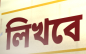
লিখবে